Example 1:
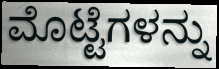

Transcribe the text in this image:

ಮೊಟ್ಟೆಗಳನ್ನು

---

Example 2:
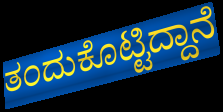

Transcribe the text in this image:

ತಂದುಕೊಟ್ಟಿದ್ದಾನೆ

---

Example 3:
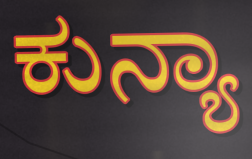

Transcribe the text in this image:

ಕುನ್ಯಾ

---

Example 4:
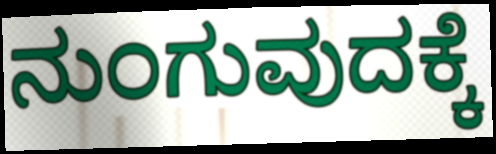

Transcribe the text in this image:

ನುಂಗುವುದಕ್ಕೆ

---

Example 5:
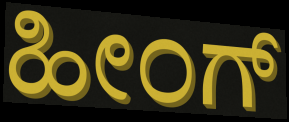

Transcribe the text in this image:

ಹೀಂಗ್